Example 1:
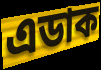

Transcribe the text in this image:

এডাক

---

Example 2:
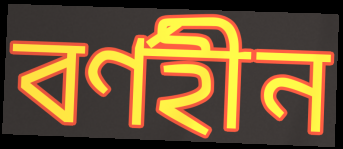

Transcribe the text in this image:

বৰ্ণহীন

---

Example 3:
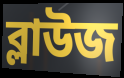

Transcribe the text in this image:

ব্লাউজ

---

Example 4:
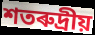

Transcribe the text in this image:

শতৰুদ্ৰীয়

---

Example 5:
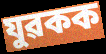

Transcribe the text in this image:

যুৱকক